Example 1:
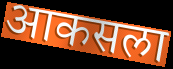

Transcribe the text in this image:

आकसला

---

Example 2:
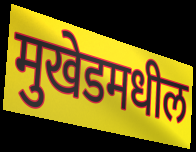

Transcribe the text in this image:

मुखेडमधील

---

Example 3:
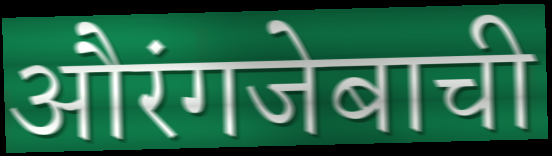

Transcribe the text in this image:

औरंगजेबाची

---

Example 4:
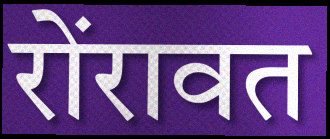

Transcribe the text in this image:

रोंरावत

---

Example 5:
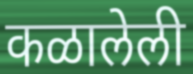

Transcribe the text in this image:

कळालेली